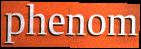
phenom